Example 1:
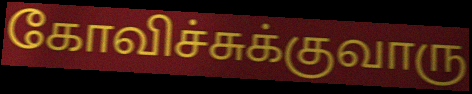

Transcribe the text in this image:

கோவிச்சுக்குவாரு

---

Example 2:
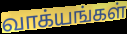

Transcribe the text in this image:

வாக்யங்கள்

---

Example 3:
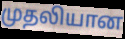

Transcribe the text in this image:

முதலியான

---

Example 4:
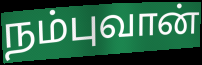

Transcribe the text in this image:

நம்புவான்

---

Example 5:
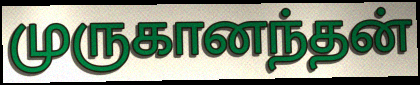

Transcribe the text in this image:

முருகானந்தன்